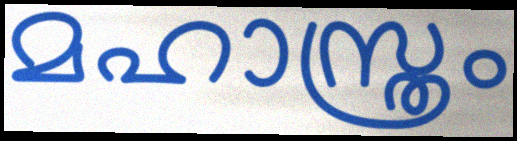
മഹാസ്ത്രം